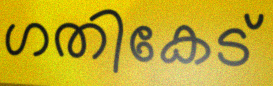
ഗതികേട്